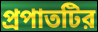
প্রপাতটির